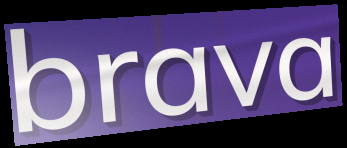
brava